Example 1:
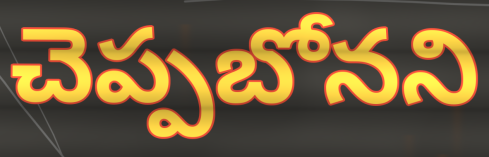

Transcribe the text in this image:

చెప్పబోనని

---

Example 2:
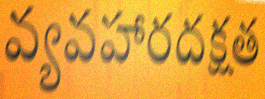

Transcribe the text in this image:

వ్యవహారదక్షత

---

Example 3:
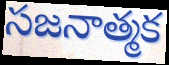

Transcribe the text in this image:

సజనాత్మక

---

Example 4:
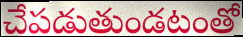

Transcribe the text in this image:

చేపడుతుండటంతో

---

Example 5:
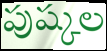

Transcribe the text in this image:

పుష్కల